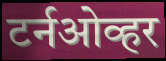
टर्नओव्हर